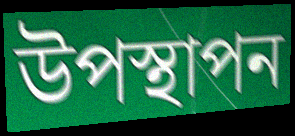
উপস্থাপন